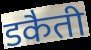
डकैती